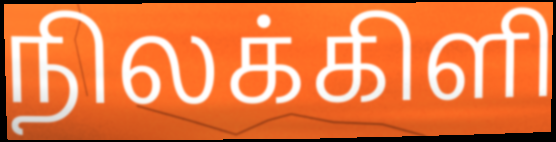
நிலக்கிளி